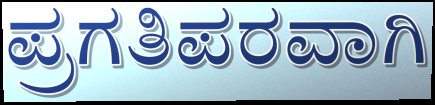
ಪ್ರಗತಿಪರವಾಗಿ